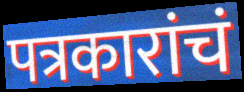
पत्रकारांचं